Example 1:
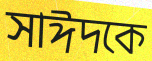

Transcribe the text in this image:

সাঈদকে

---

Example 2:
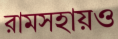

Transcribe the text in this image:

রামসহায়ও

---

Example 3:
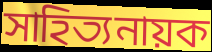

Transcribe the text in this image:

সাহিত্যনায়ক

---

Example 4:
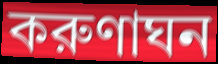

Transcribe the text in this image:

করুণাঘন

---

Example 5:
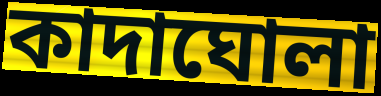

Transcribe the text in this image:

কাদাঘোলা